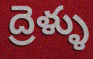
ద్రెళ్ళు